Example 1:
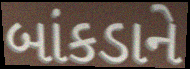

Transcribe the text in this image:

બાંકડાને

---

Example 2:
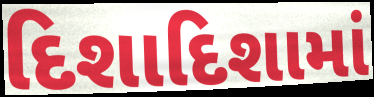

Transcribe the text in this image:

દિશાદિશામાં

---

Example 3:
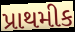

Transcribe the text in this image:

પ્રાથમીક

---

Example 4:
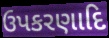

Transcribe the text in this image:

ઉપકરણાદિ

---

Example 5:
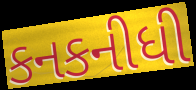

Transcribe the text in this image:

કનકનીધી